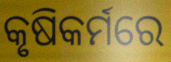
କୃଷିକର୍ମରେ